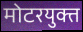
मोटरयुक्त